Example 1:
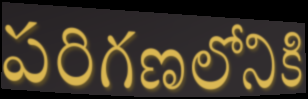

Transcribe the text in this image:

పరిగణలోనికి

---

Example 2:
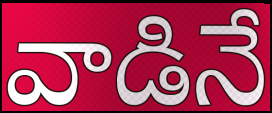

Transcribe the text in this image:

వాడినే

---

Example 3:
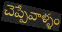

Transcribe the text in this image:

చెప్పేవాళ్ళం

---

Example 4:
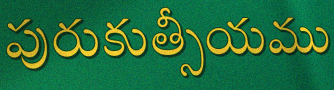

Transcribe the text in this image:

పురుకుత్సీయము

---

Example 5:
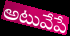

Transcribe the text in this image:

అటువేపే